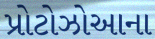
પ્રોટોઝોઆના